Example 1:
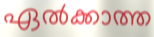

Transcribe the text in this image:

ഏൽക്കാത്ത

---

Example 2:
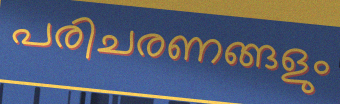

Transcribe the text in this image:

പരിചരണങ്ങളും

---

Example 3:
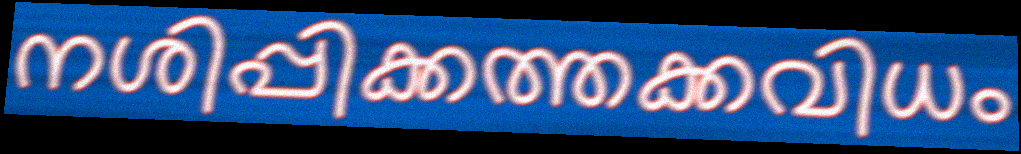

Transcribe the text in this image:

നശിപ്പിക്കത്തക്കവിധം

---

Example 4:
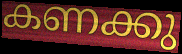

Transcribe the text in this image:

കണക്കു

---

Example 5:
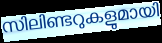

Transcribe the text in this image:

സിലിണ്ടറുകളുമായി